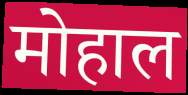
मोहाल